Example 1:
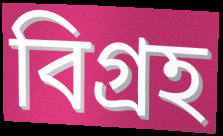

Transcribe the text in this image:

বিগ্রহ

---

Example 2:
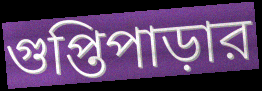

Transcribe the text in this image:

গুপ্তিপাড়ার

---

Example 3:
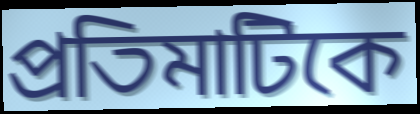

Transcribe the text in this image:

প্রতিমাটিকে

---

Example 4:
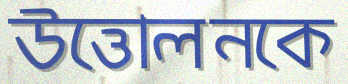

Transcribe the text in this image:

উত্তোলনকে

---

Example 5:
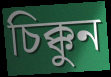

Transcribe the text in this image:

চিক্কুন